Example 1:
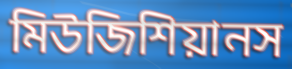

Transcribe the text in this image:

মিউজিশিয়ানস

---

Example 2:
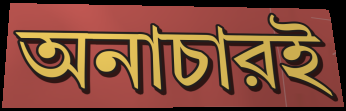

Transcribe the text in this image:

অনাচারই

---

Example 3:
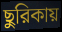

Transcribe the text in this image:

ছুরিকায়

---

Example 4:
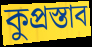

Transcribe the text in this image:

কুপ্রস্তাব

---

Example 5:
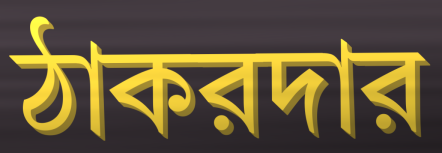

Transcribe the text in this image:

ঠাকরদার